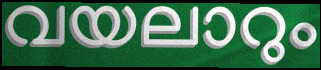
വയലാറും